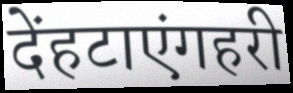
देंहटाएंगहरी